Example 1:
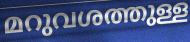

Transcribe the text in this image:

മറുവശത്തുള്ള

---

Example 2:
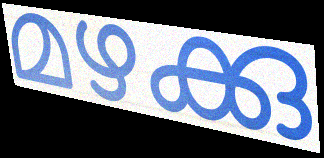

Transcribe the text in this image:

മഴക്കു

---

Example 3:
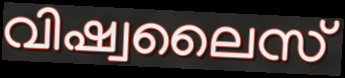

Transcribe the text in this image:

വിഷ്വലൈസ്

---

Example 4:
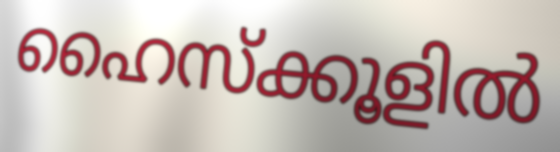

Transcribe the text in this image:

ഹൈസ്ക്കൂളിൽ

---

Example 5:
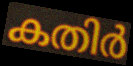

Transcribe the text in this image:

കതിർ